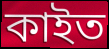
কাইত